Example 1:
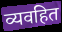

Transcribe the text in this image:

व्यवहित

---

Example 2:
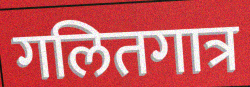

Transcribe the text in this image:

गलितगात्र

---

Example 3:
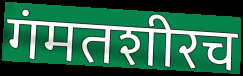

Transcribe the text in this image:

गंमतशीरच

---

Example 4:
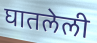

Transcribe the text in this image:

घातलेली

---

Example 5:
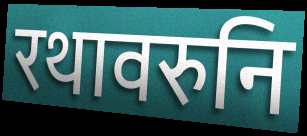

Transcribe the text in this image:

रथावरुनि